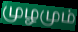
முழமும்